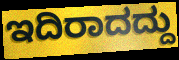
ಇದಿರಾದದ್ದು